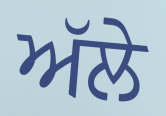
ਅੱਲੇ